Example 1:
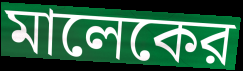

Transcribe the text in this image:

মালেকের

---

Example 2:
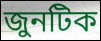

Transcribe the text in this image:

জুনটিক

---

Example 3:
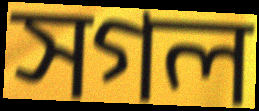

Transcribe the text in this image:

সগল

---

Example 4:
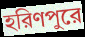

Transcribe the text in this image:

হরিণপুরে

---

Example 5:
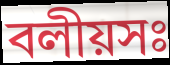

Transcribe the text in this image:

বলীয়সঃ